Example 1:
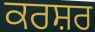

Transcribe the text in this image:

ਕਰਸ਼ਰ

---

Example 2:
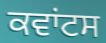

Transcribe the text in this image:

ਕਵਾਂਟਸ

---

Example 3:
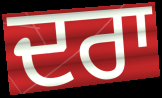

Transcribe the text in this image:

ਦਰਾ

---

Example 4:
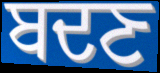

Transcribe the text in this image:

ਬਦਣ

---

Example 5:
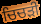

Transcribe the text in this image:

ਚਿਚੜੀ